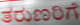
ತರುಣರಿಗೆ